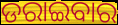
ଡରାଇବାର